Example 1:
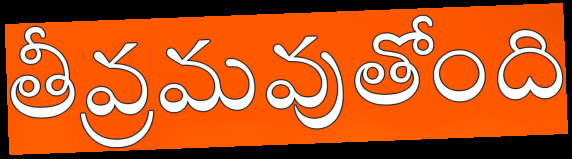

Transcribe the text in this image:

తీవ్రమవుతోంది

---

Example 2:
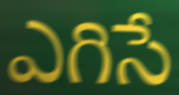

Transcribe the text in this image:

ఎగిసే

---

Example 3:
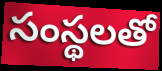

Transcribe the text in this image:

సంస్థలతో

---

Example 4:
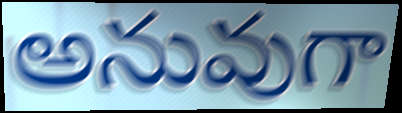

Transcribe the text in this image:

అనువుగా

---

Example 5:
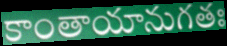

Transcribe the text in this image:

కాంతాయానుగతః